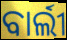
ବାର୍ଲୀ